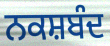
ਨਕਸ਼ਬੰਦ